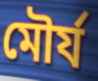
মৌৰ্য